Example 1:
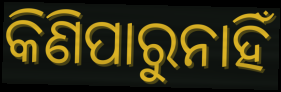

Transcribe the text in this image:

କିଣିପାରୁନାହିଁ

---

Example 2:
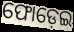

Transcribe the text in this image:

ଫୋଡ଼େଇ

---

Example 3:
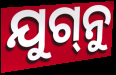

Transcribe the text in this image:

ଯୁଗ୍‌ନୁ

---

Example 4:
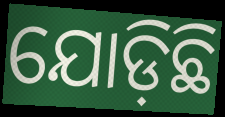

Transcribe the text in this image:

ଯୋଡ଼ିଛି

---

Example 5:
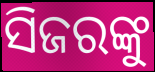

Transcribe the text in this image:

ସିଜରଙ୍କୁ